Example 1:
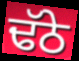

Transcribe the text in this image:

ਢੱਠੇ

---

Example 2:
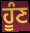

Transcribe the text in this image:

ਹੂੰਣ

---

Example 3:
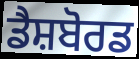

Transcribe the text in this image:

ਡੈਸ਼ਬੋਰਡ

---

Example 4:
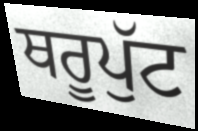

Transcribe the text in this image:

ਥਰੂਪੁੱਟ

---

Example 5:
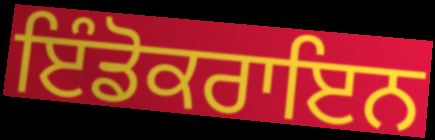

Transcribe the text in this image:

ਇੰਡੋਕਰਾਇਨ